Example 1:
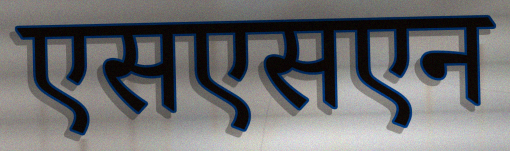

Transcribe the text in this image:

एसएसएन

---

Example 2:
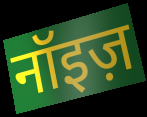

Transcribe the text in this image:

नॉइज़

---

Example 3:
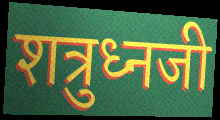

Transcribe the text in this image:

शत्रुध्नजी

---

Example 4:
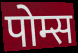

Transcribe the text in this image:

पोम्स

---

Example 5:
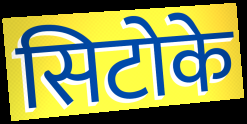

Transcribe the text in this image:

सिटोके